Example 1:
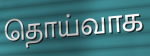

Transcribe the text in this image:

தொய்வாக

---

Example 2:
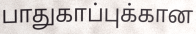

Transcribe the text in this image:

பாதுகாப்புக்கான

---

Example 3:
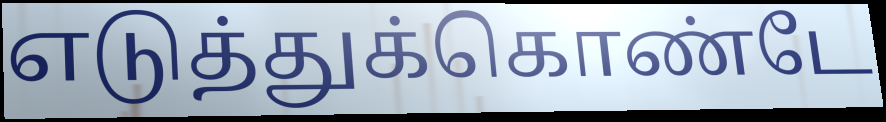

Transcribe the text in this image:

எடுத்துக்கொண்டே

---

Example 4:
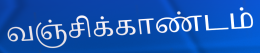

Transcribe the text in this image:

வஞ்சிக்காண்டம்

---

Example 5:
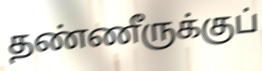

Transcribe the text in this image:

தண்ணீருக்குப்